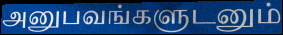
அனுபவங்களுடனும்